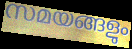
സമയങ്ങളും